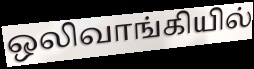
ஒலிவாங்கியில்